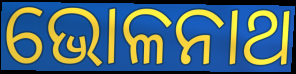
ଭୋଳନାଥ